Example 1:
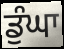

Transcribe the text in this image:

ਡੁੰਘਾ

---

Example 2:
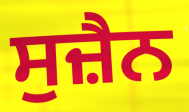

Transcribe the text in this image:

ਸੁਜ਼ੈਨ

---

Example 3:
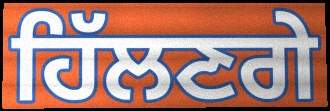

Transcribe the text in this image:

ਹਿੱਲਣਗੇ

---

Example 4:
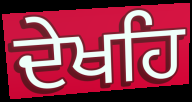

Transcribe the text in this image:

ਦੇਖਹਿ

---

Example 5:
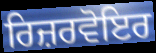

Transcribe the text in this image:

ਰਿਜ਼ਰਵੋਇਰ